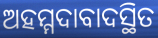
ଅହମ୍ମଦାବାଦସ୍ଥିତ